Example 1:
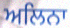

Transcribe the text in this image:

ਅਲਿਨਾ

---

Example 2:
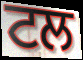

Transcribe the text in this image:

ਟਲ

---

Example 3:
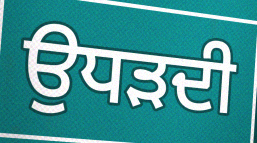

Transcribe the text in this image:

ਉਧੜਦੀ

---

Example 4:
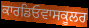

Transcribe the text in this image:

ਕਾਰਡਿਓਵਾਸਕੂਲਰ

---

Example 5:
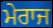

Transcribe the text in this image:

ਮੇਰਾਜ